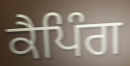
ਕੈਪਿੰਗ